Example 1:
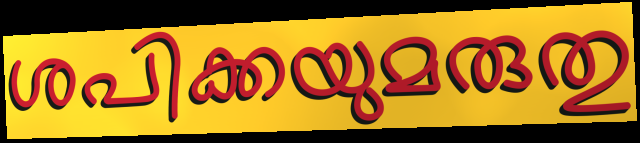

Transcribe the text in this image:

ശപിക്കയുമരുതു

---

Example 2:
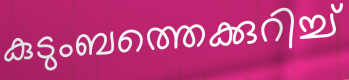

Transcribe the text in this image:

കുടുംബത്തെക്കുറിച്ച്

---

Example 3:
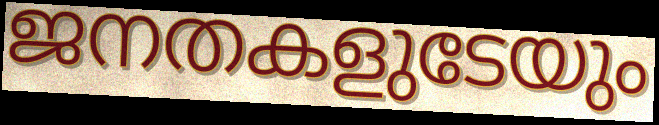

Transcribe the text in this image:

ജനതകളുടേയും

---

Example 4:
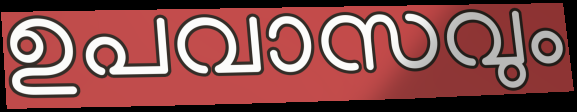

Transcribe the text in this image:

ഉപവാസവും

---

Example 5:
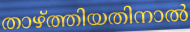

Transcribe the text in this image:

താഴ്ത്തിയതിനാൽ